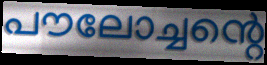
പൗലോച്ചന്റെ